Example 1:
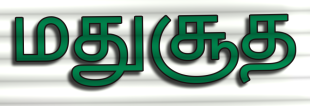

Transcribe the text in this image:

மதுசூத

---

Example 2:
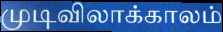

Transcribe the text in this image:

முடிவிலாக்காலம்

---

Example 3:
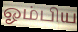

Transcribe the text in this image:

ஓம்பிய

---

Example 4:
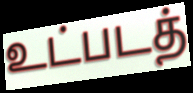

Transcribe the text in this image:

உட்படத்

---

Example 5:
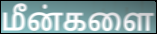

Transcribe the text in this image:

மீன்களை